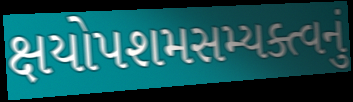
ક્ષયોપશમસમ્યક્ત્વનું